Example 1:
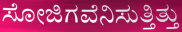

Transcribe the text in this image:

ಸೋಜಿಗವೆನಿಸುತ್ತಿತ್ತು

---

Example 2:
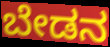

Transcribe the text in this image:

ಬೇಡನ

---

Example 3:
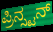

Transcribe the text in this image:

ಪ್ರಿನ್ಸ್ಟನ್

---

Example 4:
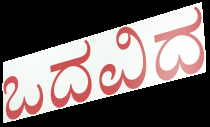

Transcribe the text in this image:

ಒದವಿದ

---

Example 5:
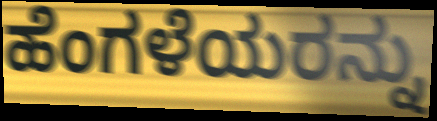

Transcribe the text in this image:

ಹೆಂಗಳೆಯರನ್ನು